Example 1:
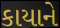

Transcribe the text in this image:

કાયાને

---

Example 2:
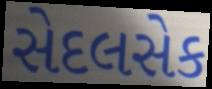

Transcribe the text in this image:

સેદલસેક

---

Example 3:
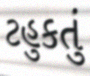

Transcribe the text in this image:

ટહુકતું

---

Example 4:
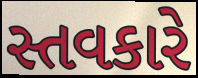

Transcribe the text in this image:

સ્તવકારે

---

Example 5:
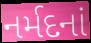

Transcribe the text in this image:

નર્મદનાં